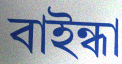
বাইন্ধা